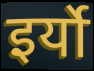
इर्यो